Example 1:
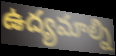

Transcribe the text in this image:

ఉద్యమాల్ని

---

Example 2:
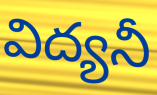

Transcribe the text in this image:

విద్యనీ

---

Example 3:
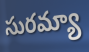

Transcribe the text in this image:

సురమ్యా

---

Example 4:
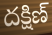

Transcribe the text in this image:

దక్షిణ్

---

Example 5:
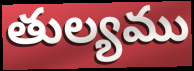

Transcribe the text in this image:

తుల్యము